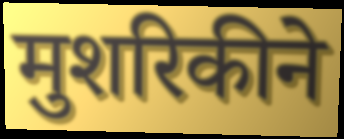
मुशरिकीने